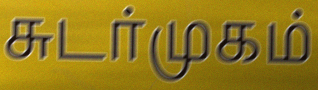
சுடர்முகம்